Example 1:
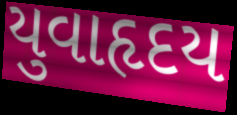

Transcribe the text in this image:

યુવાહૃદય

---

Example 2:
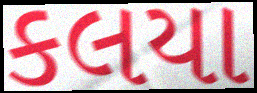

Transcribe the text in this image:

કલયા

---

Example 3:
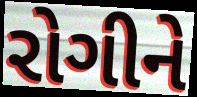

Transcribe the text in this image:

રોગીને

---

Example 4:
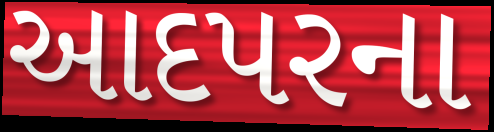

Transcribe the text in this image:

આદપરના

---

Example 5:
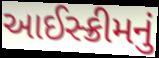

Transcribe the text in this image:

આઈસ્ક્રીમનું